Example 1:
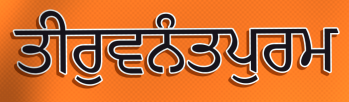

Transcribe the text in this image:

ਤੀਰੁਵਨੰਤਪੁਰਮ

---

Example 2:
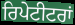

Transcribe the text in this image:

ਰਿਪੇਟੀਟਰਾਂ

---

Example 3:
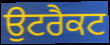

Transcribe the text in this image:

ਉਟਰੈਕਟ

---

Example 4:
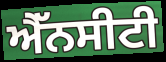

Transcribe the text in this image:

ਐੱਨਸੀਟੀ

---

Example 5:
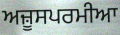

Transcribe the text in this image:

ਅਜ਼ੂਸਪਰਮੀਆ